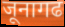
जूनागढ